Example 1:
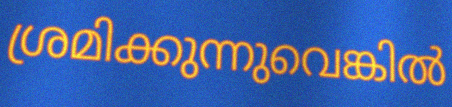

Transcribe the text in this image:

ശ്രമിക്കുന്നുവെങ്കിൽ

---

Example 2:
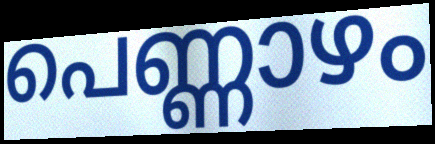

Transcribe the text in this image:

പെണ്ണാഴം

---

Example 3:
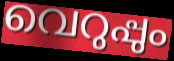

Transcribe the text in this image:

വെറുപ്പും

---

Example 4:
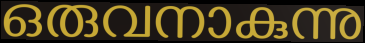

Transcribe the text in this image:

ഒരുവനാകുന്നു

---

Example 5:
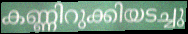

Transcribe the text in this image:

കണ്ണിറുക്കിയടച്ചു